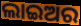
ଲାଇଅର